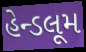
હેન્ડલૂમ